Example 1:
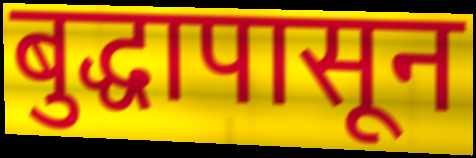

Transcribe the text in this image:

बुद्धापासून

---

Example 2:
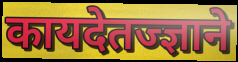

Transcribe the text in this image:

कायदेतज्ज्ञाने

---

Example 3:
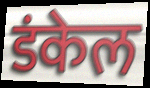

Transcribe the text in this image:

डंकेल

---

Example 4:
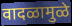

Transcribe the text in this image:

वादळामुळे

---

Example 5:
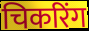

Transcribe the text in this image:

चिकरिंग